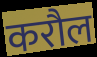
करौल